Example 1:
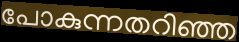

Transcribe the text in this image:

പോകുന്നതറിഞ്ഞ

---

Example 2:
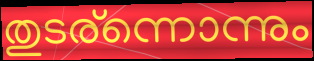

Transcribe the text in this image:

തുടര്ന്നൊന്നും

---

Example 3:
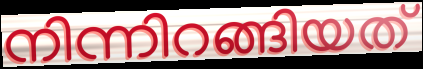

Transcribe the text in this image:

നിന്നിറങ്ങിയത്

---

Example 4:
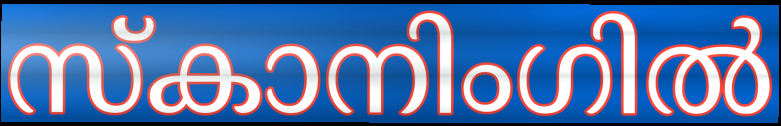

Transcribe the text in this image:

സ്കാനിംഗിൽ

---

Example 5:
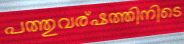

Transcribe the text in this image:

പത്തുവര്ഷത്തിനിടെ